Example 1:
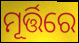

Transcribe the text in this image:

ମୂର୍ତ୍ତିରେ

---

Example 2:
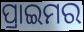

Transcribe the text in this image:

ପ୍ରାଇମର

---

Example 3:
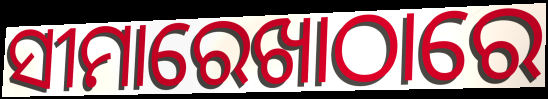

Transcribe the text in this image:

ସୀମାରେଖାଠାରେ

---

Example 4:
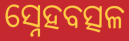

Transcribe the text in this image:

ସ୍ନେହବତ୍ସଳ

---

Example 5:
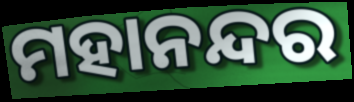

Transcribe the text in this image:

ମହାନନ୍ଦର